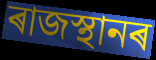
ৰাজস্থানৰ